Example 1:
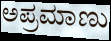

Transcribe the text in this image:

ಅಪ್ರಮಾಣು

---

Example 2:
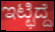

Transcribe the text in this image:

ಇಟ್ಟಿದ್ದೆ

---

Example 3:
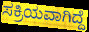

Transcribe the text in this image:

ಸಕ್ರಿಯವಾಗಿದ್ದೆ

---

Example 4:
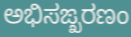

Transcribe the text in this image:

ಅಭಿಸಙ್ಖರಣಂ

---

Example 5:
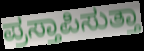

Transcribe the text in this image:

ಪ್ರಸ್ತಾಪಿಸುತ್ತಾ